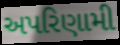
અપરિણામી